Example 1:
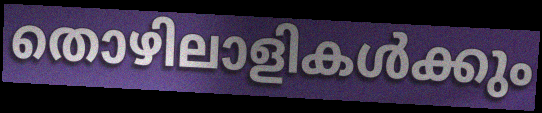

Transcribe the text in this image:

തൊഴിലാളികൾക്കും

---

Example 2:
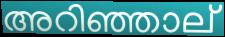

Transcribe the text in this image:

അറിഞ്ഞാല്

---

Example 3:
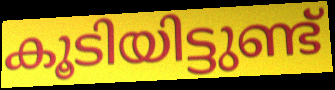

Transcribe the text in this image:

കൂടിയിട്ടുണ്ട്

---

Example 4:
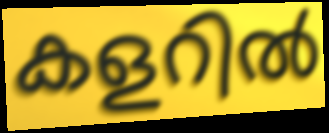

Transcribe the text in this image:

കളറിൽ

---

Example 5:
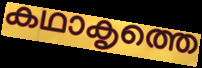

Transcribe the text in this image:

കഥാകൃത്തെ